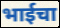
भाईचा